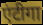
एंटीगा